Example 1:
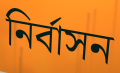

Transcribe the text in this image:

নিৰ্বাসন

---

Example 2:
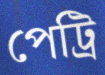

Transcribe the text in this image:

পেট্ৰি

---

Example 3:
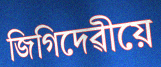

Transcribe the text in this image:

জিগিদেৱীয়ে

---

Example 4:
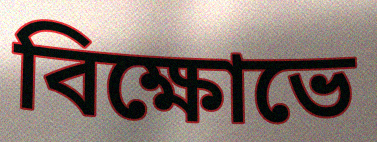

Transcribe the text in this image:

বিক্ষোভে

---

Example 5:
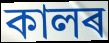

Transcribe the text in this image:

কালৰ